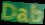
Dab